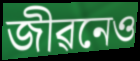
জীৱনেও